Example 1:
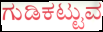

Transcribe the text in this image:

ಗುಡಿಕಟ್ಟುವ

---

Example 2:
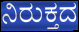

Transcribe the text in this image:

ನಿರುಕ್ತದ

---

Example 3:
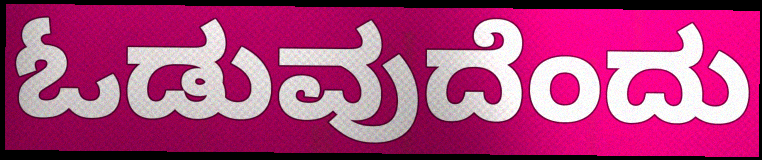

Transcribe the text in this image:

ಓಡುವುದೆಂದು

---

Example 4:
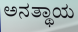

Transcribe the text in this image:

ಅನತ್ಥಾಯ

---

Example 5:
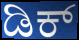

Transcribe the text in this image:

ಡಿಕ್